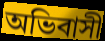
অভিবাসী